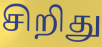
சிறிது